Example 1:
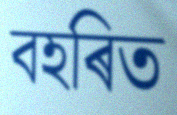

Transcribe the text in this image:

বহৰিত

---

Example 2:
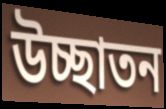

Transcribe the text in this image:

উচ্ছাতন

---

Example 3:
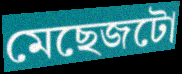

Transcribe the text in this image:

মেছেজটো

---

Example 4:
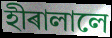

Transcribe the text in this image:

হীৰালালে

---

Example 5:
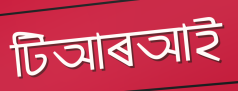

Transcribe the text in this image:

টিআৰআই